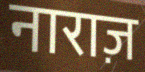
नाराज़